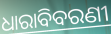
ଧାରାବିବରଣୀ